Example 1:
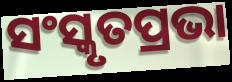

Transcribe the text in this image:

ସଂସ୍କୃତପ୍ରଭା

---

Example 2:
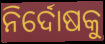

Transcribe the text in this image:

ନିର୍ଦୋଷକୁ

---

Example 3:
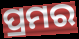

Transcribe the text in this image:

ପ୍ରମର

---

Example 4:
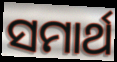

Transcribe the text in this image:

ସମାର୍ଥ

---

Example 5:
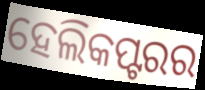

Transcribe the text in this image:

ହେଲିକପ୍ଟରର